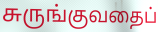
சுருங்குவதைப்